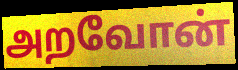
அறவோன்